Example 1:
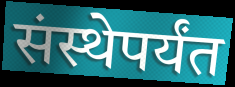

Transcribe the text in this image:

संस्थेपर्यंत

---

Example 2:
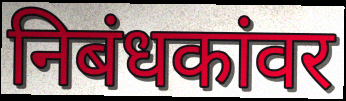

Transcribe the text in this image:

निबंधकांवर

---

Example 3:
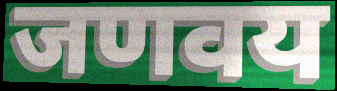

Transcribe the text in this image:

जणवय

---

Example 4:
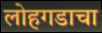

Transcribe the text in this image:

लोहगडाचा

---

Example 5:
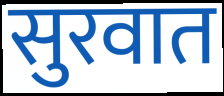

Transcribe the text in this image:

सुरवात